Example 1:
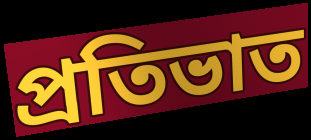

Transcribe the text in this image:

প্রতিভাত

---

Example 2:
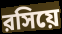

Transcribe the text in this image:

রসিয়ে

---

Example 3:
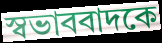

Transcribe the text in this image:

স্বভাববাদকে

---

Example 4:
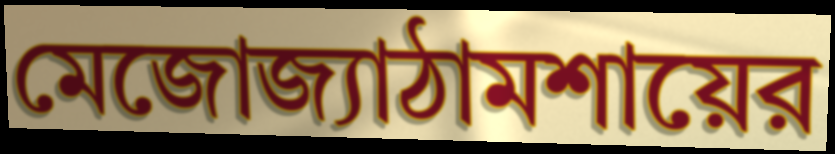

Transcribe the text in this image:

মেজোজ্যাঠামশায়ের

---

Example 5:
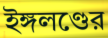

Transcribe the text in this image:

ইঙ্গলণ্ডের